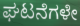
ಘಟನೆಗಳೇ